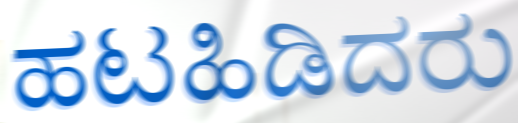
ಹಟಹಿಡಿದರು